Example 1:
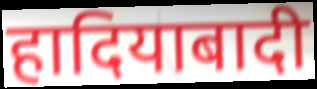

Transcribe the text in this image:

हादियाबादी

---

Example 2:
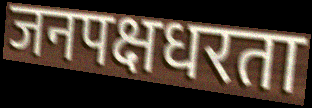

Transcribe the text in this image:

जनपक्षधरता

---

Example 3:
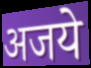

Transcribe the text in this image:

अजये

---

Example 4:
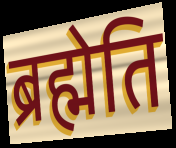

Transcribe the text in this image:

ब्रह्मेति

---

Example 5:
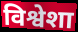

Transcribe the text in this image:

विश्वेशा